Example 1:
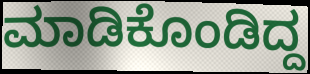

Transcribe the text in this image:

ಮಾಡಿಕೊಂಡಿದ್ದ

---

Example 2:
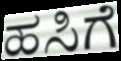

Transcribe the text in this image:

ಹಸಿಗೆ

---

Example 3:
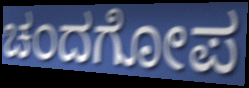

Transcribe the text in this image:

ಚಂದಗೋಪ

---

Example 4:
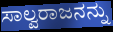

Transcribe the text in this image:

ಸಾಲ್ವರಾಜನನ್ನು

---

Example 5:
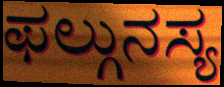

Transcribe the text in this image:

ಫಲ್ಗುನಸ್ಯ